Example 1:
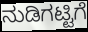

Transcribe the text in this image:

ನುಡಿಗಟ್ಟಿಗೆ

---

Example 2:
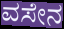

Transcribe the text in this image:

ವಸೇನ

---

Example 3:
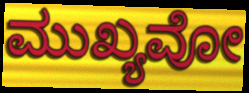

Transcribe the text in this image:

ಮುಖ್ಯವೋ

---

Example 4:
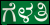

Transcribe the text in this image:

ಗೆಳತಿ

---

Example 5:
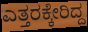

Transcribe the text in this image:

ಎತ್ತರಕ್ಕೇರಿದ್ದ